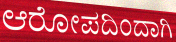
ಆರೋಪದಿಂದಾಗಿ